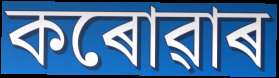
কৰোৱাৰ